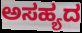
ಅಸಹ್ಯದ